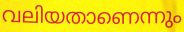
വലിയതാണെന്നും